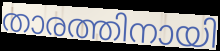
താരത്തിനായി